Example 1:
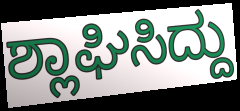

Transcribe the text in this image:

ಶ್ಲಾಘಿಸಿದ್ದು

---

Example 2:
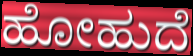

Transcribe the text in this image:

ಹೋಹುದೆ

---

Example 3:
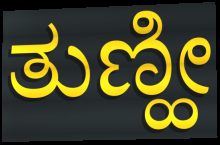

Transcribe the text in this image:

ತುಣ್ಹೀ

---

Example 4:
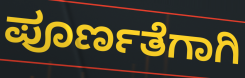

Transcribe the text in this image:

ಪೂರ್ಣತೆಗಾಗಿ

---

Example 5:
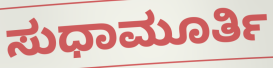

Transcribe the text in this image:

ಸುಧಾಮೂರ್ತಿ